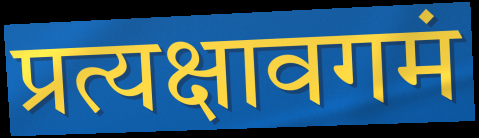
प्रत्यक्षावगमं